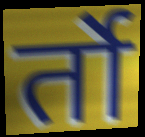
र्तो